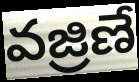
వజ్రిణే